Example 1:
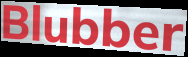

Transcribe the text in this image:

Blubber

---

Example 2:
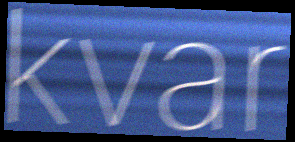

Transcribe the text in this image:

kvar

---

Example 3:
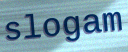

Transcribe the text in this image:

slogam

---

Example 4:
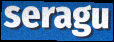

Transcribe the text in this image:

seragu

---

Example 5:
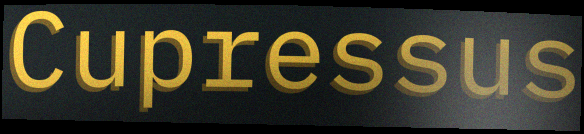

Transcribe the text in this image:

Cupressus